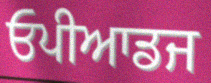
ਓਪੀਆਡਜ